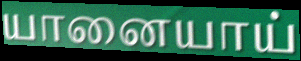
யானையாய்